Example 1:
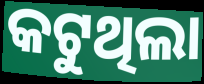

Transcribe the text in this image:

କଟୁଥିଲା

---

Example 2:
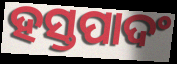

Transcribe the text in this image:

ହସ୍ତପାଦଂ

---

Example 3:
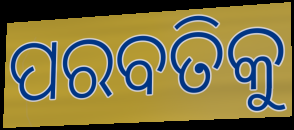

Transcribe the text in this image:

ପରବତିକୁ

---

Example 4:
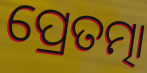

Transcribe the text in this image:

ପ୍ରେତତ୍ମା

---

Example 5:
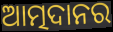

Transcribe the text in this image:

ଆତ୍ମଦାନର